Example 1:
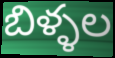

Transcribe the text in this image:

బిళ్ళల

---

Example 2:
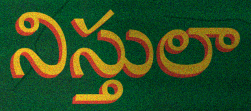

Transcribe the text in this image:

నిస్తులా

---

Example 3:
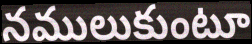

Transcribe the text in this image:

నములుకుంటూ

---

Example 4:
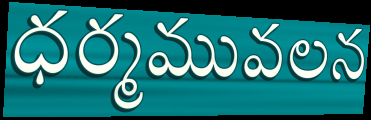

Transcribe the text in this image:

ధర్మమువలన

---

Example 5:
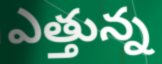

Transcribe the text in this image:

ఎత్తున్న